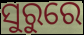
ସୁରୁରେ